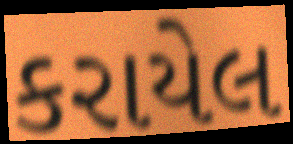
કરાયેલ